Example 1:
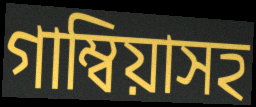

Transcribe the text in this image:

গাম্বিয়াসহ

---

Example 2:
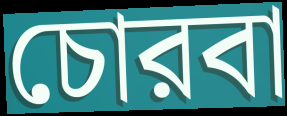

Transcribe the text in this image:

চোরবা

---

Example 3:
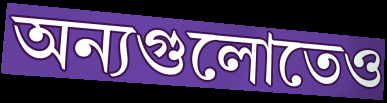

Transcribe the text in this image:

অন্যগুলোতেও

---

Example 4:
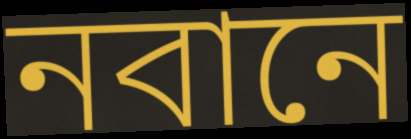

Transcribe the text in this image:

নবানে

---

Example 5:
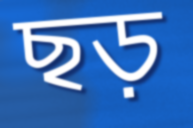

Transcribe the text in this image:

ছড়